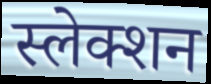
स्लेक्शन